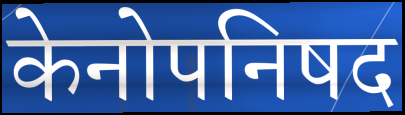
केनोपनिषद